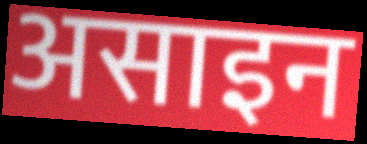
असाइन